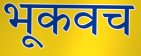
भूकवच